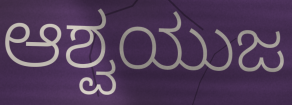
ಆಶ್ವಯುಜ